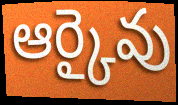
ఆర్కైవు